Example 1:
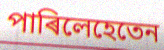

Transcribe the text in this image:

পাৰিলেহেতেন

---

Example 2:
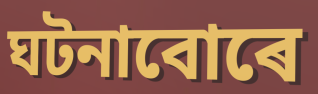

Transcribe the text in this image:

ঘটনাবোৰে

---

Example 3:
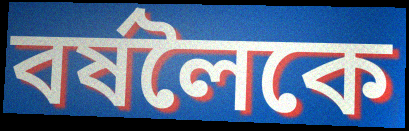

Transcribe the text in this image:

বৰ্ষলৈকে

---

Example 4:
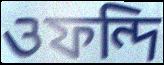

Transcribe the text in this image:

ওফন্দি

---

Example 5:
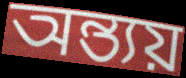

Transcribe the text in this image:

অন্ত্যয়